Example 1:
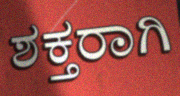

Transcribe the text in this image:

ಶಕ್ತರಾಗಿ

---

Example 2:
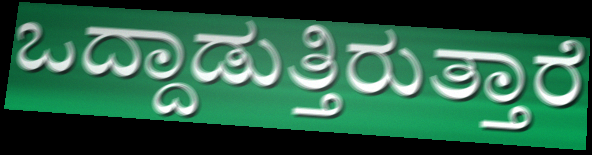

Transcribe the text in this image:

ಒದ್ದಾಡುತ್ತಿರುತ್ತಾರೆ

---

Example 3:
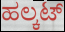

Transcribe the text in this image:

ಹಲ್ಕಟ್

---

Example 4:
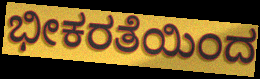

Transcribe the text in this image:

ಭೀಕರತೆಯಿಂದ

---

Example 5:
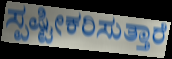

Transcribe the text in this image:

ಸ್ಪಷ್ಟೀಕರಿಸುತ್ತಾರೆ